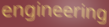
engineering